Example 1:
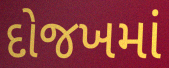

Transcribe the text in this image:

દોજખમાં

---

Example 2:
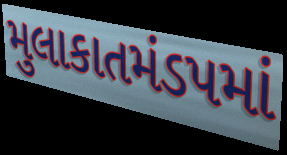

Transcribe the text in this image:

મુલાકાતમંડપમાં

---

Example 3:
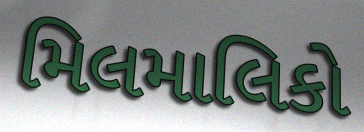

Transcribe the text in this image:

મિલમાલિકો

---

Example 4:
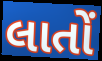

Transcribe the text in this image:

લાતોં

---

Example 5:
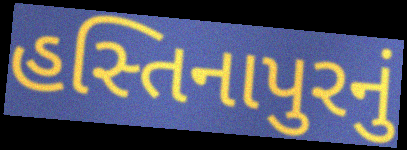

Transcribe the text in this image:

હસ્તિનાપુરનું